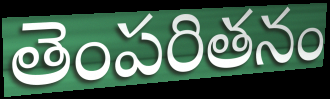
తెంపరితనం